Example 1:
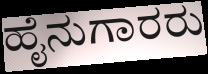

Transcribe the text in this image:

ಹೈನುಗಾರರು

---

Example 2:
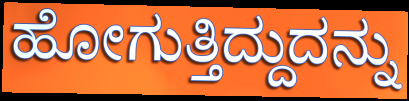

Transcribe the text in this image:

ಹೋಗುತ್ತಿದ್ದುದನ್ನು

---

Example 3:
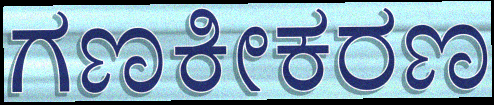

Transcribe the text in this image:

ಗಣಕೀಕರಣ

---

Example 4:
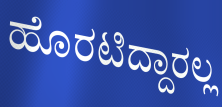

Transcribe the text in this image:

ಹೊರಟಿದ್ದಾರಲ್ಲ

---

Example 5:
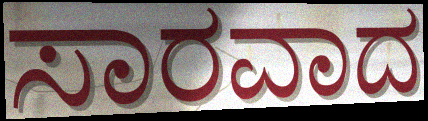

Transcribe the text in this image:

ಸಾರವಾದ